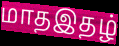
மாதஇதழ்